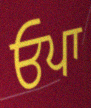
ਓਪਾ